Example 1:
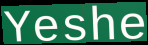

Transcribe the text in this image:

Yeshe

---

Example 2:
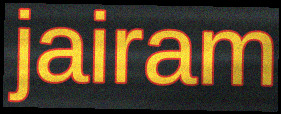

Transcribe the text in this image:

jairam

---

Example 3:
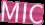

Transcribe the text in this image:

MIC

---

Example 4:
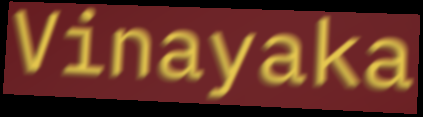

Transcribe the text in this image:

Vinayaka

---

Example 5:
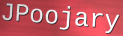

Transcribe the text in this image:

JPoojary